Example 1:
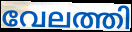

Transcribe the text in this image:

വേലത്തി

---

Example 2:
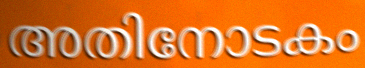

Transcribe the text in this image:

അതിനോടകം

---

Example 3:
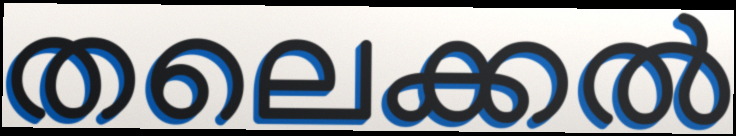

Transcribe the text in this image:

തലെക്കൽ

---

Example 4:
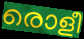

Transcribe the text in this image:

രൊളീ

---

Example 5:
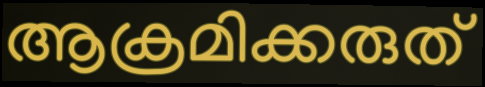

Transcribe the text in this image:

ആക്രമിക്കരുത്